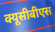
क्यूसीबीएस